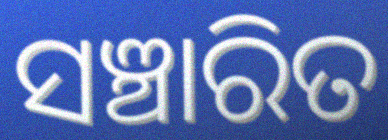
ସଞ୍ଚାରିତ